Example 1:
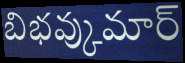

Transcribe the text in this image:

బిభవ్కుమార్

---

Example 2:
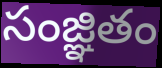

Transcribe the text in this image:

సంజ్ఞితం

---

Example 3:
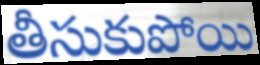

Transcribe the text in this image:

తీసుకుపోయి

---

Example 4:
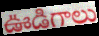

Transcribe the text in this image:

ఊడిగాలు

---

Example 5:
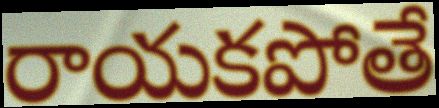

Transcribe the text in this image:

రాయకపోతే